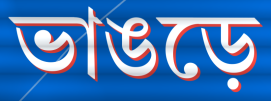
ভাঙড়ে